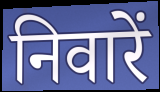
निवारें